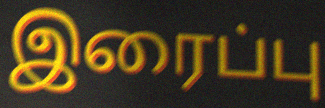
இரைப்பு